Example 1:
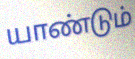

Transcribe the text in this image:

யாண்டும்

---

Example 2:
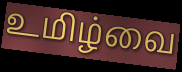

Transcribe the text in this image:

உமிழ்வை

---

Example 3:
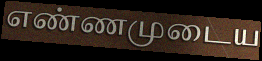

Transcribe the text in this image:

எண்ணமுடைய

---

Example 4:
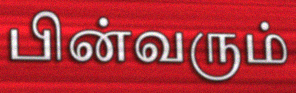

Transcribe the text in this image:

பின்வரும்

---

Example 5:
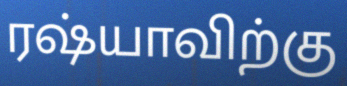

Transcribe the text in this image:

ரஷ்யாவிற்கு